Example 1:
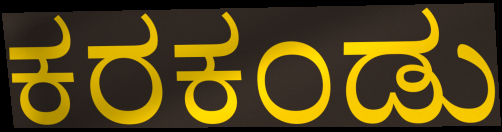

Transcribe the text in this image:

ಕರಕಂಡು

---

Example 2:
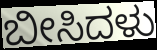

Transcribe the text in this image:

ಬೀಸಿದಳು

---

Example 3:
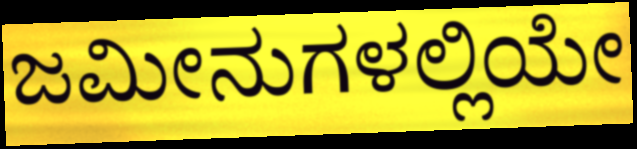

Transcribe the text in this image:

ಜಮೀನುಗಳಲ್ಲಿಯೇ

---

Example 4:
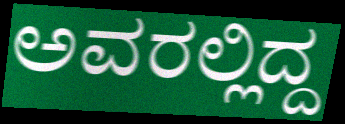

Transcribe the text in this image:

ಅವರಲ್ಲಿದ್ದ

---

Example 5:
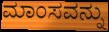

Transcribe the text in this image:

ಮಾಂಸವನ್ನು